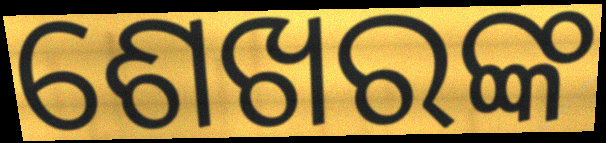
ଶେଖରଙ୍କ